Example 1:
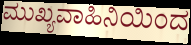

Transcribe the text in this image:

ಮುಖ್ಯವಾಹಿನಿಯಿಂದ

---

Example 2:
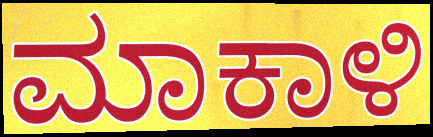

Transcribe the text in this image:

ಮಾಕಾಳಿ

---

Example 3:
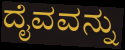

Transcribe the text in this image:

ದೈವವನ್ನು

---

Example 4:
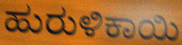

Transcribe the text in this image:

ಹುರುಳಿಕಾಯಿ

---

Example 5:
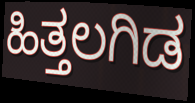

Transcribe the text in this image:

ಹಿತ್ತಲಗಿಡ